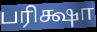
பரிக்ஷா